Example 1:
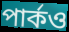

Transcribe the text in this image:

পার্কও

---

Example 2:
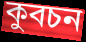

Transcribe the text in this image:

কুবচন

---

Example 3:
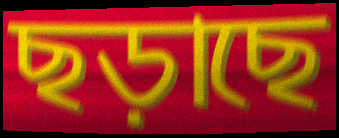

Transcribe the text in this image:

ছড়াছে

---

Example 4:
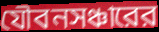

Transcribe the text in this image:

যৌবনসঞ্চারের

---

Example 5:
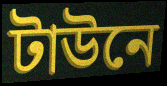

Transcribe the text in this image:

টাউনে